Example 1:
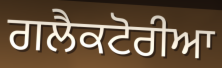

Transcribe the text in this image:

ਗਲੈਕਟੋਰੀਆ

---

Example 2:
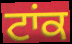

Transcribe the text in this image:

ਟਾਂਕ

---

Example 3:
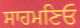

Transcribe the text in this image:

ਸਾਹਮਣਿਓ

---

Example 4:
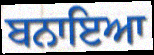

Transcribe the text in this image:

ਬਨਾਇਆ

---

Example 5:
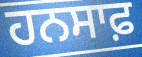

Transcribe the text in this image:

ਹਨਸਾਫ਼